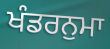
ਖੰਡਰਨੁਮਾ